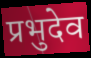
प्रभुदेव